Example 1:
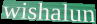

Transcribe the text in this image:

wishalun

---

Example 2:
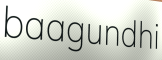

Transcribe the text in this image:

baagundhi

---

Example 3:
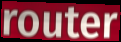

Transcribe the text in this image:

router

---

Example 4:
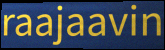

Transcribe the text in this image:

raajaavin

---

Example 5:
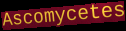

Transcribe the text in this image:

Ascomycetes